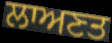
ਲਾਅਣਤ